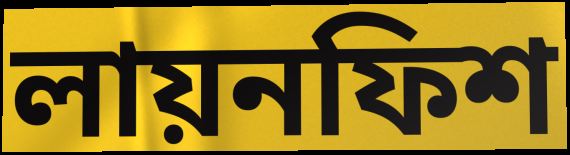
লায়নফিশ